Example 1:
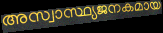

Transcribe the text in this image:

അസ്വാസ്ഥ്യജനകമായ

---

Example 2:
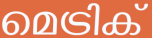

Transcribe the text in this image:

മെട്രിക്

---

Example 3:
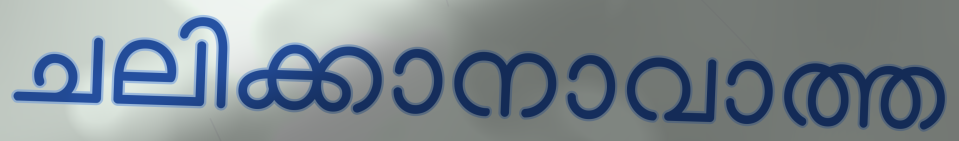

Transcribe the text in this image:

ചലിക്കാനാവാത്ത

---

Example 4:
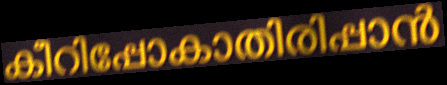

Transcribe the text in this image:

കീറിപ്പോകാതിരിപ്പാൻ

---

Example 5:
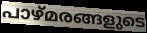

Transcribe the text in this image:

പാഴ്മരങ്ങളുടെ